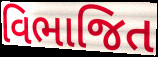
વિભાજિત